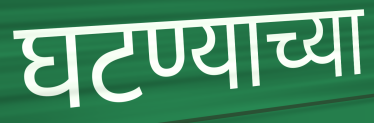
घटण्याच्या